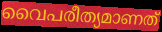
വൈപരീത്യമാണത്